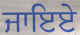
ਜਾਇਏ